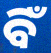
ବିଁ